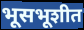
भूसभूशीत